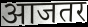
आजतर